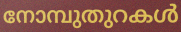
നോമ്പുതുറകൾ